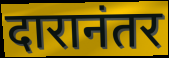
दारानंतर